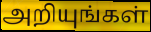
அறியுங்கள்